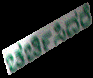
ಚರ್ಚಿಸಿದರೆ